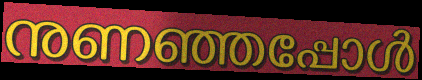
നുണഞ്ഞപ്പോൾ